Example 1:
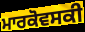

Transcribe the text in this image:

ਮਾਰਕੋਵਸਕੀ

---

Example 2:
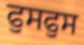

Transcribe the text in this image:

ਫੁਸਫੁਸ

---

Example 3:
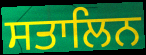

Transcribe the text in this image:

ਸਤਾਲਿਨ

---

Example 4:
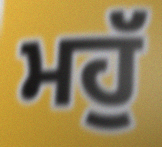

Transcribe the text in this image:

ਮਹੁੱ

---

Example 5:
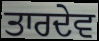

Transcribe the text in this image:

ਤਾਰਦੇਵ